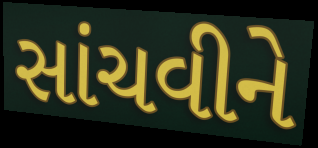
સાંચવીને